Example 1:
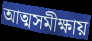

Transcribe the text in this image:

আত্মসমীক্ষায়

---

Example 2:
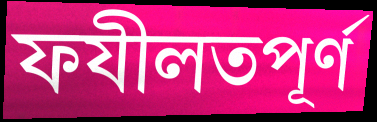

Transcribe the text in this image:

ফযীলতপূর্ণ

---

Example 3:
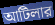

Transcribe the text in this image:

আটিলার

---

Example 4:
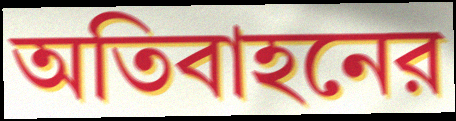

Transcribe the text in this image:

অতিবাহনের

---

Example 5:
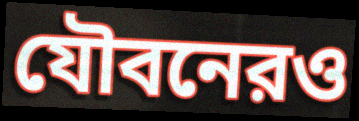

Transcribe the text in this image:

যৌবনেরও